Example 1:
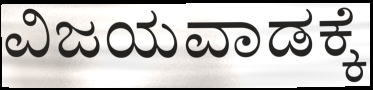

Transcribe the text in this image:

ವಿಜಯವಾಡಕ್ಕೆ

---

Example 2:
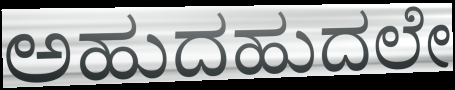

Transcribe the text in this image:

ಅಹುದಹುದಲೇ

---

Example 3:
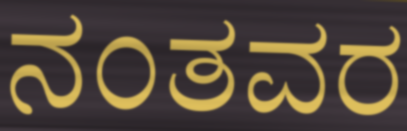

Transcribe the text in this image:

ನಂತವರ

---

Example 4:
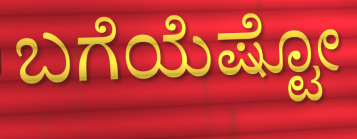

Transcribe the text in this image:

ಬಗೆಯೆಷ್ಟೋ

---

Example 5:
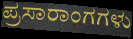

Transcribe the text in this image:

ಪ್ರಸಾರಾಂಗಗಳು